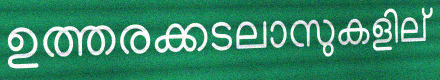
ഉത്തരക്കടലാസുകളില്